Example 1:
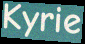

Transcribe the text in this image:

Kyrie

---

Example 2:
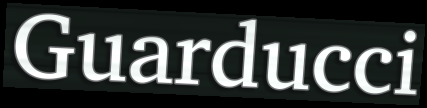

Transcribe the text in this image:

Guarducci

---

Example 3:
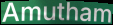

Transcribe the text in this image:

Amutham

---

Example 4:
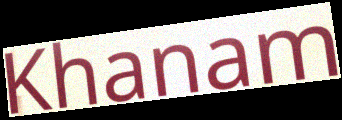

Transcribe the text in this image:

Khanam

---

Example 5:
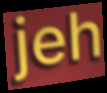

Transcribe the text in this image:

jeh